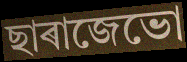
ছাৰাজেভো